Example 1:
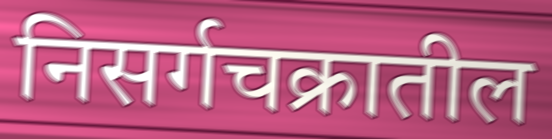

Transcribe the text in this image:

निसर्गचक्रातील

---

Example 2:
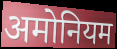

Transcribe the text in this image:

अमोनियम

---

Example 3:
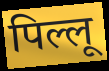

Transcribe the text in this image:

पिल्लू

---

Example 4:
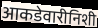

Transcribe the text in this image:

आकडेवारीनिशी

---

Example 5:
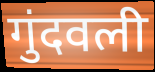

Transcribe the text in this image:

गुंदवली